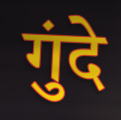
गुंदे